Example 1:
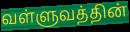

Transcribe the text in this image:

வள்ளுவத்தின்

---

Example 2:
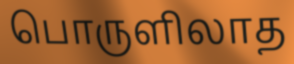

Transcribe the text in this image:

பொருளிலாத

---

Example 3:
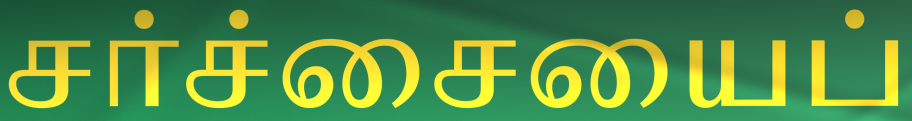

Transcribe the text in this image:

சர்ச்சையைப்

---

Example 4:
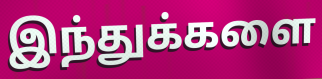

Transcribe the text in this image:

இந்துக்களை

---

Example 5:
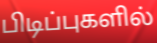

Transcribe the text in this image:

பிடிப்புகளில்